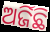
ଅର୍ଜିଛି